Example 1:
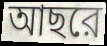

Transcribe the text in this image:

আছরে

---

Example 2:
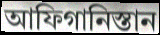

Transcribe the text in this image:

আফিগানিস্তান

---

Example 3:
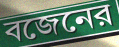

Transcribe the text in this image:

বজেনের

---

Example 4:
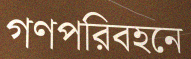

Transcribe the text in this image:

গণপরিবহনে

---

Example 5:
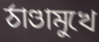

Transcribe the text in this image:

ঠাণ্ডামুখে